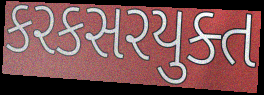
કરકસરયુક્ત